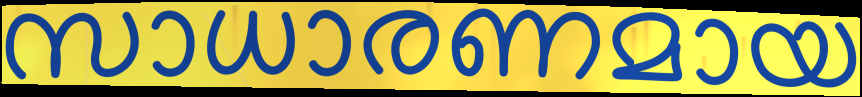
സാധാരണമായ